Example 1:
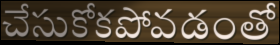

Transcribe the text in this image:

చేసుకోకపోవడంతో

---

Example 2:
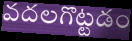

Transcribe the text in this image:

వదలగొట్టడం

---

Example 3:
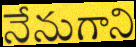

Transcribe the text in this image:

నేనుగాని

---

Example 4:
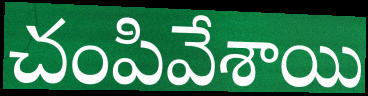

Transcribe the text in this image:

చంపివేశాయి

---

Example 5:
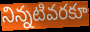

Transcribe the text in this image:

నిన్నటివరకూ